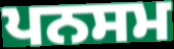
ਪਨਸਮ